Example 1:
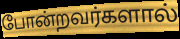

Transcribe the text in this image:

போன்றவர்களால்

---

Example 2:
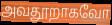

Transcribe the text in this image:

அவதூறாகவோ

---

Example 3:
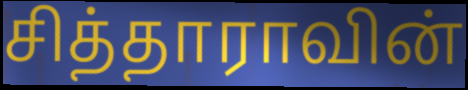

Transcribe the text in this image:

சித்தாராவின்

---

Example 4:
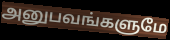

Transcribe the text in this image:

அனுபவங்களுமே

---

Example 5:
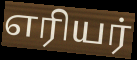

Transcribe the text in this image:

எரியர்